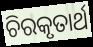
ଚିରକୃତାର୍ଥ